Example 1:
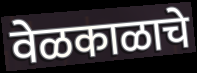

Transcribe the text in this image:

वेळकाळाचे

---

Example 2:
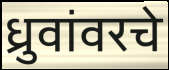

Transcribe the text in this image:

ध्रुवांवरचे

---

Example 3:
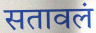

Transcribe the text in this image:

सतावलं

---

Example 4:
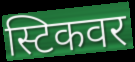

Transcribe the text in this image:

स्टिकवर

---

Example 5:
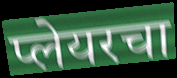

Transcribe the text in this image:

प्लेयरचा